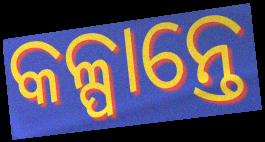
କଳ୍ପାନ୍ତେ